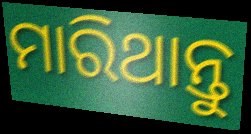
ମାରିଥାନ୍ତୁ